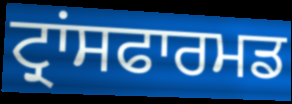
ਟ੍ਰਾਂਸਫਾਰਮਡ